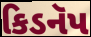
કિડનૅપ